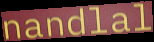
nandlal